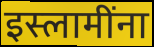
इस्लामींना